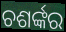
ଚଶର୍ଙ୍କର